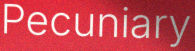
Pecuniary